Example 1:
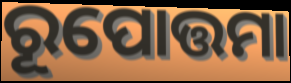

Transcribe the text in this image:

ରୂପୋତ୍ତମା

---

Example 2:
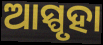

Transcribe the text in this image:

ଆସ୍ପୃହା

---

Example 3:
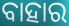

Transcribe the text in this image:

ବାହାର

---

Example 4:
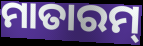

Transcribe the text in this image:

ମାତାରମ୍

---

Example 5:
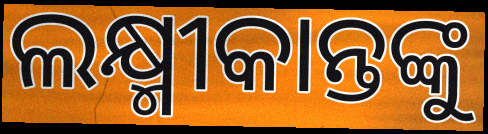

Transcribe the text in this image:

ଲକ୍ଷ୍ମୀକାନ୍ତଙ୍କୁ